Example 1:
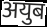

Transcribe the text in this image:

अयुब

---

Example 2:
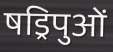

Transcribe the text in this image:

षड्रिपुओं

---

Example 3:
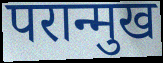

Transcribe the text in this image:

परान्मुख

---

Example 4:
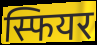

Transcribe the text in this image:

स्फियर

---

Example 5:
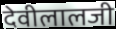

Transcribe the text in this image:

देवीलालजी